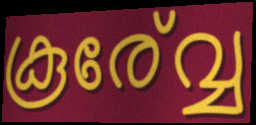
കൂര്വ്വേ